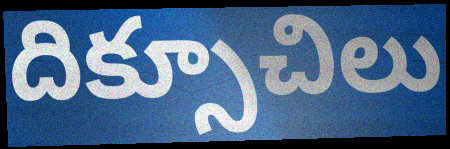
దిక్సూచిలు